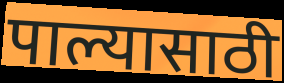
पाल्यासाठी